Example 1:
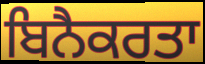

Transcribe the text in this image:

ਬਿਨੈਕਰਤਾ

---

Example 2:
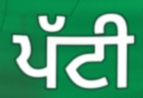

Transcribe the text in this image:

ਪੱਟੀ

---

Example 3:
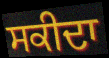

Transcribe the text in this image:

ਸਕੀਦਾ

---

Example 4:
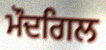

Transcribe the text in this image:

ਮੌਦਗਿਲ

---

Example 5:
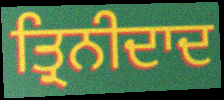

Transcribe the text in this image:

ਤ੍ਰਿਨੀਦਾਦ